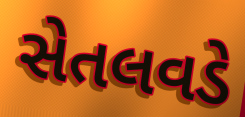
સેતલવડે